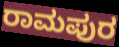
ರಾಮಪುರ